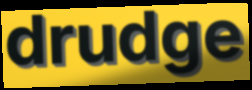
drudge